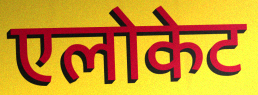
एलोकेट